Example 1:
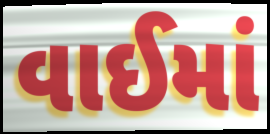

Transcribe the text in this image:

વાઈમાં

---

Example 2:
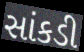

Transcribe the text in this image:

સાંકડી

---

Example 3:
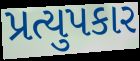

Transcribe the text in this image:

પ્રત્યુપકાર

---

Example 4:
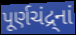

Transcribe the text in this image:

પૂર્ણચંદ્ર્નાં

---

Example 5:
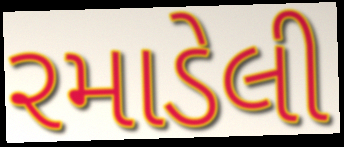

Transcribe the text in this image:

રમાડેલી